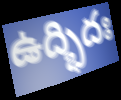
ఉద్భిదః